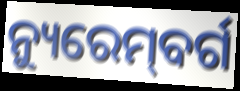
ନ୍ୟୁରେମ୍‌ବର୍ଗ